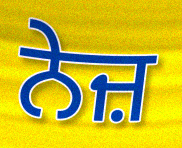
ਨੇਜ਼